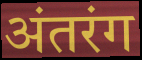
अंतरंग